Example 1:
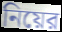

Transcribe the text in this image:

নিয়ের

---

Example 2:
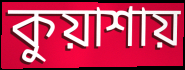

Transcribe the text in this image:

কুয়াশায়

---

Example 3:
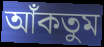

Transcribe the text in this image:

আঁকতুম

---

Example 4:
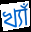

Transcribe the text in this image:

খ্যাঁ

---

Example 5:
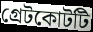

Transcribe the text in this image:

গ্রেটকোটটি